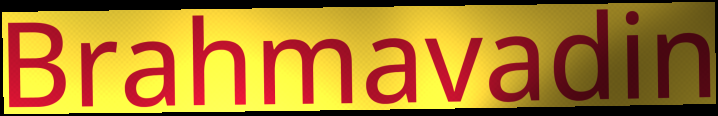
Brahmavadin